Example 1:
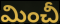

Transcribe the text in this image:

మించీ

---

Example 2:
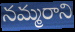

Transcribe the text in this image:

నమ్మరాని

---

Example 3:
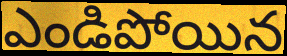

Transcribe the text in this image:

ఎండిపోయిన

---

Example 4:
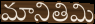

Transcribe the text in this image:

మానితిమి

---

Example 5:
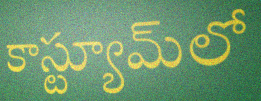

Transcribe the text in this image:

కాస్ట్యూమ్‌లో